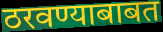
ठरवण्याबाबत